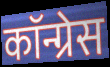
कॉन्ग्रेस